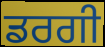
ਡਰਗੀ